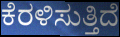
ಕೆರಳಿಸುತ್ತಿದೆ